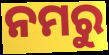
ନମରୁ